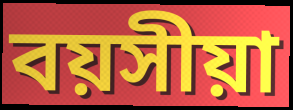
বয়সীয়া